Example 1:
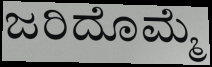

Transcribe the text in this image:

ಜರಿದೊಮ್ಮೆ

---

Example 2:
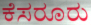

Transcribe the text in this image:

ಕೆಸರೂರು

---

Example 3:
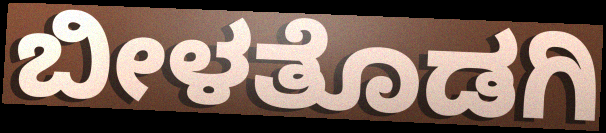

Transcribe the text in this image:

ಬೀಳತೊಡಗಿ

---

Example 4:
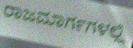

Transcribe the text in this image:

ರಾಜಮಾರ್ಗಗಳಲ್ಲಿ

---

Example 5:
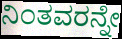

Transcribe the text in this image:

ನಿಂತವರನ್ನೇ